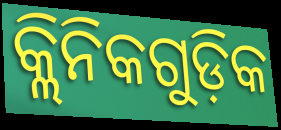
କ୍ଲିନିକଗୁଡ଼ିକ